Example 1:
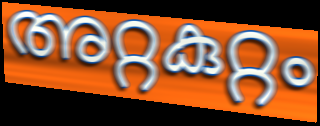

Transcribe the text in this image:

അറ്റകുറ്റം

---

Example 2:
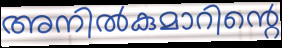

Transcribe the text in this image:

അനിൽകുമാറിന്റെ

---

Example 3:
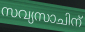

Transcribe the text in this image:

സവ്യസാചിന്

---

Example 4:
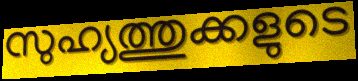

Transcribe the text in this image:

സുഹ്യത്തുക്കളുടെ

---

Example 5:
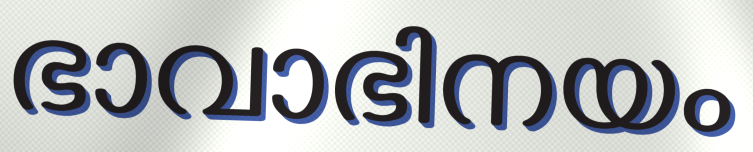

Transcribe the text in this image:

ഭാവാഭിനയം